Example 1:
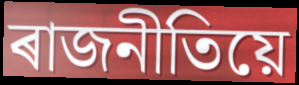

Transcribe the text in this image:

ৰাজনীতিয়ে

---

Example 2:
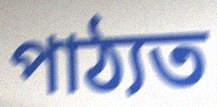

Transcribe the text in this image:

পাঠ্যত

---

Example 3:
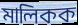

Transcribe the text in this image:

মালিকক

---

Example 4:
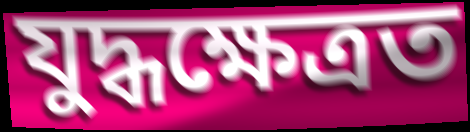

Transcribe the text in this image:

যুদ্ধক্ষেত্ৰত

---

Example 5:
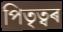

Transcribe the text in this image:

পিতৃত্বৰ